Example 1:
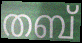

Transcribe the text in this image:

തബ്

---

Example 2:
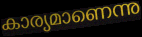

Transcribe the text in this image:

കാര്യമാണെന്നു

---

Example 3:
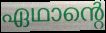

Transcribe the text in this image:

ഏഥാന്റെ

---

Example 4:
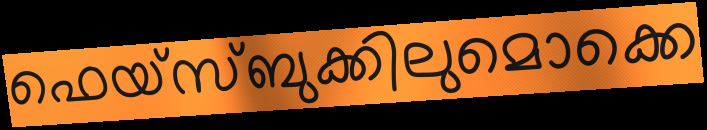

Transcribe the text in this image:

ഫെയ്സ്ബുക്കിലുമൊക്കെ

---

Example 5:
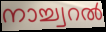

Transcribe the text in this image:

നാച്ച്വറൽ